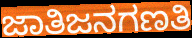
ಜಾತಿಜನಗಣತಿ